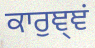
ਕਾਰੁਞ੍ਞਂ